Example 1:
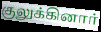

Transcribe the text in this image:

குலுக்கினார்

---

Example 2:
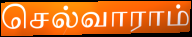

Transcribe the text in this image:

செல்வாராம்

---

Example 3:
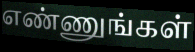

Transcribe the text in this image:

எண்ணுங்கள்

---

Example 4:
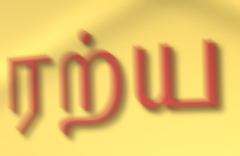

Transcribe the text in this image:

ரற்ய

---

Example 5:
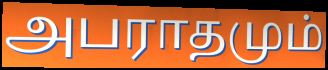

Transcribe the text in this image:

அபராதமும்